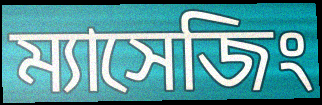
ম্যাসেজিং